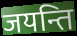
जयन्ति